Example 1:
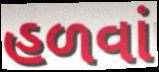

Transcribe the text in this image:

હળવાં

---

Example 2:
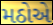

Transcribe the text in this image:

મઠોએ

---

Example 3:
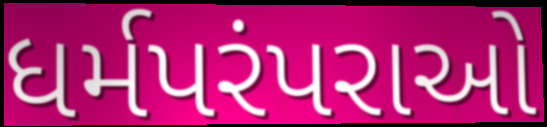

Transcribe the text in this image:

ધર્મપરંપરાઓ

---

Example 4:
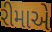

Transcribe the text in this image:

રીમાએ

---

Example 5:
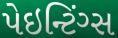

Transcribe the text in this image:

પેઇન્ટિંગ્સ